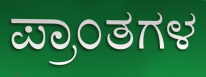
ಪ್ರಾಂತಗಳ